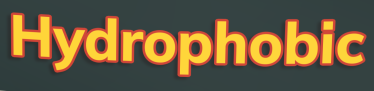
Hydrophobic